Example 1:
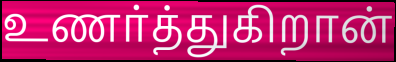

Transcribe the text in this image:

உணர்த்துகிறான்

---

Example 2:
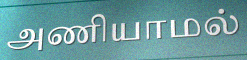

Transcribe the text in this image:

அணியாமல்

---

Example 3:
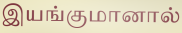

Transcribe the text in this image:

இயங்குமானால்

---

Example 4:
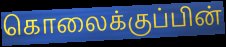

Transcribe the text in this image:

கொலைக்குப்பின்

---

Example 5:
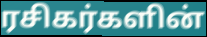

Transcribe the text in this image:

ரசிகர்களின்